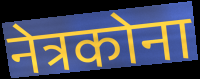
नेत्रकोना